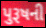
પુરૂષની